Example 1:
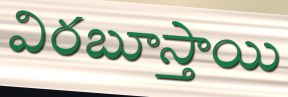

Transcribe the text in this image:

విరబూస్తాయి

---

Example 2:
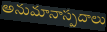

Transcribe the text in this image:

అనుమానాస్పదాలు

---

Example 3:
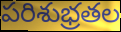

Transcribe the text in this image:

పరిశుభ్రతల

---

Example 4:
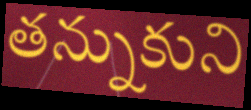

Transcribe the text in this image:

తన్నుకుని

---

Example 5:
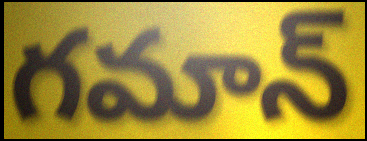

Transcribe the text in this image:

గమాన్